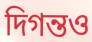
দিগন্তও